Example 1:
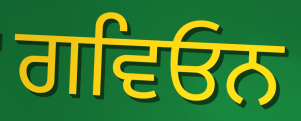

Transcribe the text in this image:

ਗਵਿਓਨ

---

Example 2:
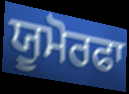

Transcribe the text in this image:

ਯੂਮੋਰਫਾ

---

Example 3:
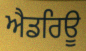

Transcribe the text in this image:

ਐਡਰਿਊ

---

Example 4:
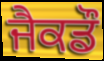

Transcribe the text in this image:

ਜੈਕਡੌ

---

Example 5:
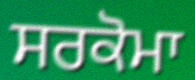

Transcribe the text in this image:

ਸਰਕੋਮਾ